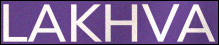
LAKHVA